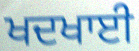
ਖਦਖਾਈ